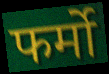
फर्मो